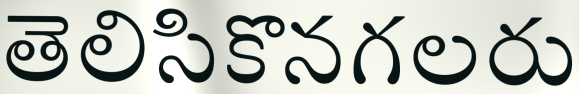
తెలిసికొనగలరు